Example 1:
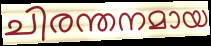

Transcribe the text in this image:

ചിരന്തനമായ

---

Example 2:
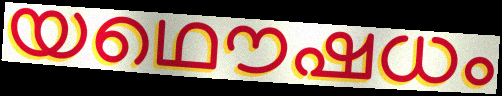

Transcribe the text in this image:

യഥൌഷധം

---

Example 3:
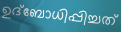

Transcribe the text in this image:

ഉദ്ബോധിപ്പിച്ചത്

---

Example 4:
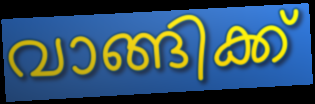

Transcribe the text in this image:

വാങ്ങിക്ക്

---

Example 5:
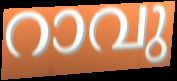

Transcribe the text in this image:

റാവു